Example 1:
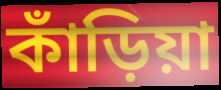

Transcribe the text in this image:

কাঁড়িয়া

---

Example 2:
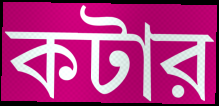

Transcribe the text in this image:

কটার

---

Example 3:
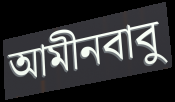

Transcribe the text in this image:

আমীনবাবু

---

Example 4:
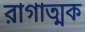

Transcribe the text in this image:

রাগাত্মক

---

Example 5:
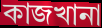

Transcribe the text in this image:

কাজখানা